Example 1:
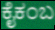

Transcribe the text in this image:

ಕೈಕಂಬ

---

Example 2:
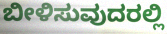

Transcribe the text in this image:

ಬೀಳಿಸುವುದರಲ್ಲಿ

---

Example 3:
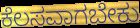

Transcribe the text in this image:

ಕೆಲಸವಾಗಬೇಕು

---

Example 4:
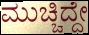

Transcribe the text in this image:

ಮುಚ್ಚಿದ್ದೇ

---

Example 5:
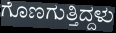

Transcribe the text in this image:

ಗೊಣಗುತ್ತಿದ್ದಳು